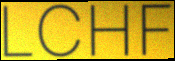
LCHF